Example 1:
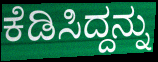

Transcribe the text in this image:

ಕೆಡಿಸಿದ್ದನ್ನು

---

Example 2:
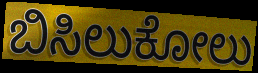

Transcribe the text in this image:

ಬಿಸಿಲುಕೋಲು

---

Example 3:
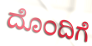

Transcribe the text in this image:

ದೊಂದಿಗೆ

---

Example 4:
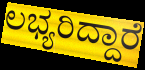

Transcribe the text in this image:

ಲಭ್ಯರಿದ್ದಾರೆ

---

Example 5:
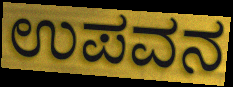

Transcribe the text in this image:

ಉಪವನ